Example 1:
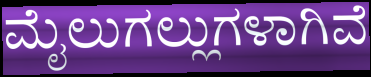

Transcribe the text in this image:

ಮೈಲುಗಲ್ಲುಗಳಾಗಿವೆ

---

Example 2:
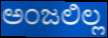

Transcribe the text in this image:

ಅಂಜಲಿಲ್ಲ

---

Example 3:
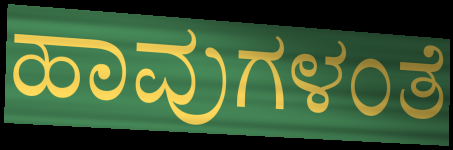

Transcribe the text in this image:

ಹಾವುಗಳಂತೆ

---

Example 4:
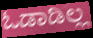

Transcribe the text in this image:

ಓಡಾಡಿಲ್ಲ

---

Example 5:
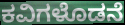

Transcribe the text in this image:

ಕವಿಗಳೊಡನೆ